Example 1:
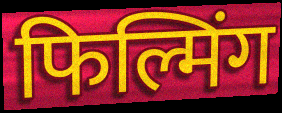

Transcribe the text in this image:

फिल्मिंग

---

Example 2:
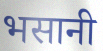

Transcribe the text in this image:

भसानी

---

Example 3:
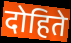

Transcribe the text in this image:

दोहिते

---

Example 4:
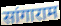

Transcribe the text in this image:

सांगाराम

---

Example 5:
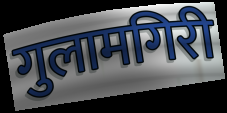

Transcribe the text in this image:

गुलामगिरी